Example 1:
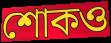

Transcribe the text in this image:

শোকও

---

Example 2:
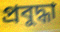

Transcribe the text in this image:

প্রবুদ্ধা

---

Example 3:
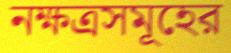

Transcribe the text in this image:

নক্ষত্রসমূহের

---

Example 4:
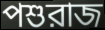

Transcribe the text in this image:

পশুরাজ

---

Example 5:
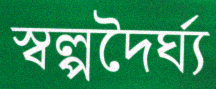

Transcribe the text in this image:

স্বল্পদৈর্ঘ্য